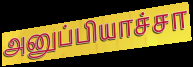
அனுப்பியாச்சா